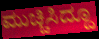
ಮುಚ್ಚಿಸಿದ್ದೂ